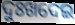
ଦୁଃଖଦେଇ